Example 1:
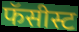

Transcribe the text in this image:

फॅसीस्ट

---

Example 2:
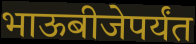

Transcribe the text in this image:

भाऊबीजेपर्यंत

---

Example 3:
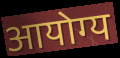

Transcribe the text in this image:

आयोग्य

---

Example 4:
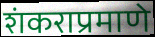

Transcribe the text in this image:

शंकराप्रमाणे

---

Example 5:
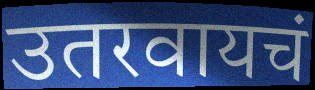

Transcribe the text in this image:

उतरवायचं